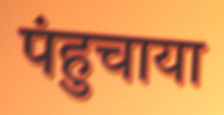
पंहुचाया